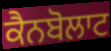
ਕੈਨਬੋਲਾਟ